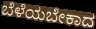
ಬೆಳೆಯಬೇಕಾದ